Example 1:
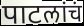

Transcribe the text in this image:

पाटलांचं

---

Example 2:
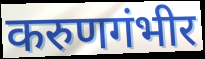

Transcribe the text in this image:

करुणगंभीर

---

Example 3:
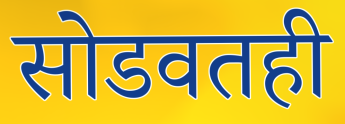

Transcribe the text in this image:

सोडवतही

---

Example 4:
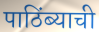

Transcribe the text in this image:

पाठिंब्याची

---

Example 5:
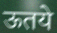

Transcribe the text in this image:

ऊतये